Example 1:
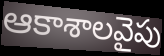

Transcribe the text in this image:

ఆకాశాలవైపు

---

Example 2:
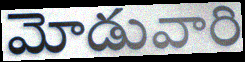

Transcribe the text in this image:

మోడువారి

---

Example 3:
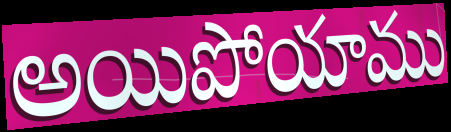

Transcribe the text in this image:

అయిపోయాము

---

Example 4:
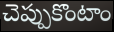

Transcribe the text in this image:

చెప్పుకొంటాం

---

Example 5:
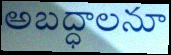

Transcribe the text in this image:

అబద్ధాలనూ